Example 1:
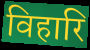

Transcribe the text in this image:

विहारि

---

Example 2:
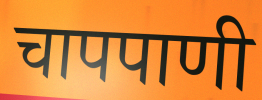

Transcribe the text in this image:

चापपाणी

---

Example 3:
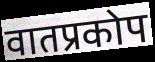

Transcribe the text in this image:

वातप्रकोप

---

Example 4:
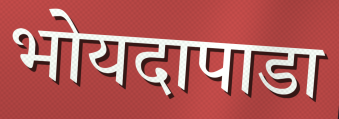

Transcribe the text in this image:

भोयदापाडा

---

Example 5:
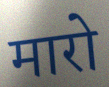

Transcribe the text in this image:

मारो